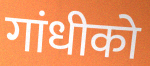
गांधीको